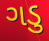
ગડુ